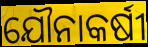
ଯୌନାକର୍ଷୀ